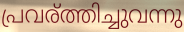
പ്രവര്ത്തിച്ചുവന്നു